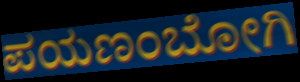
ಪಯಣಂಬೋಗಿ